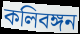
কলিবঙ্গন